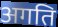
अगति